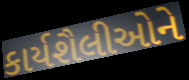
કાર્યશૈલીઓને